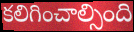
కలిగించాల్సింది